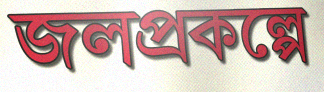
জলপ্রকল্পে